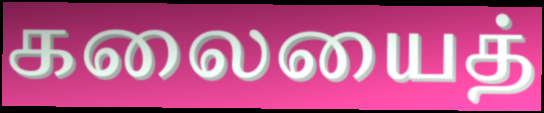
கலையைத்